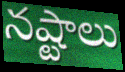
నష్టాలు